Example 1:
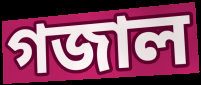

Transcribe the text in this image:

গজাল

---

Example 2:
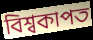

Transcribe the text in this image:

বিশ্বকাপত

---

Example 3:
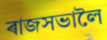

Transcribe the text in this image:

ৰাজসভালৈ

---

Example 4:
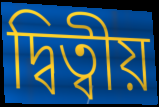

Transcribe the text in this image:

দ্বিত্বীয়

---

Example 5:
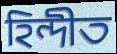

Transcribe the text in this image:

হিন্দীত